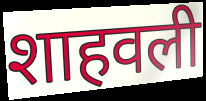
शाहवली